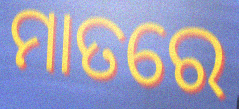
ମାତରେ